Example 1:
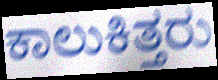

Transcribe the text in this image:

ಕಾಲುಕಿತ್ತರು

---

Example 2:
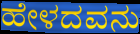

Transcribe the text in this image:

ಹೇಳದವನು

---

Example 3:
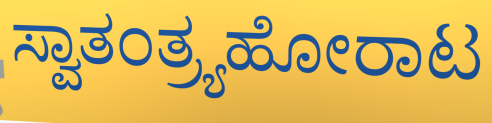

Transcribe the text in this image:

ಸ್ವಾತಂತ್ರ್ಯಹೋರಾಟ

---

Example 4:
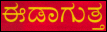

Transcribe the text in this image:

ಈಡಾಗುತ್ತ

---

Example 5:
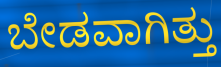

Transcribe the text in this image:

ಬೇಡವಾಗಿತ್ತು